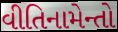
વીતિનામેન્તો